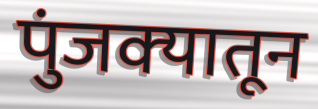
पुंजक्यातून